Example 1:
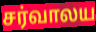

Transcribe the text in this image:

சர்வாலய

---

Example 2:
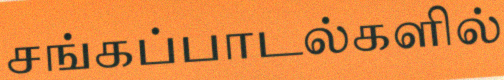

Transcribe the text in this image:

சங்கப்பாடல்களில்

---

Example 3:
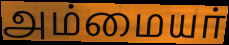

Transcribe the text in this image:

அம்மையர்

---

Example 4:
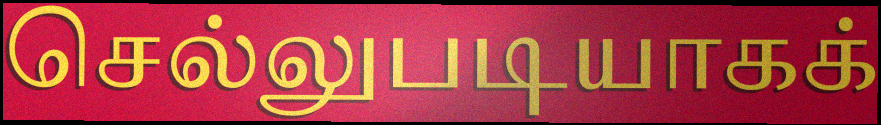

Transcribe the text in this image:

செல்லுபடியாகக்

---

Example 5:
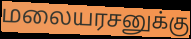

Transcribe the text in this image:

மலையரசனுக்கு